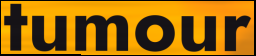
tumour